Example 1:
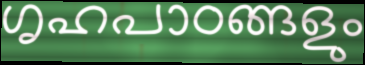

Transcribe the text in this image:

ഗൃഹപാഠങ്ങളും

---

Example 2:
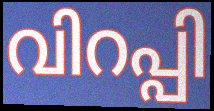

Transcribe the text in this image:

വിറപ്പി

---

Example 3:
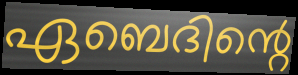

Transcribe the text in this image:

ഏബെദിന്റെ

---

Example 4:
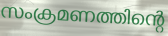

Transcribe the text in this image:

സംക്രമണത്തിന്റെ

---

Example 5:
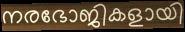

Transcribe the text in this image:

നരഭോജികളായി